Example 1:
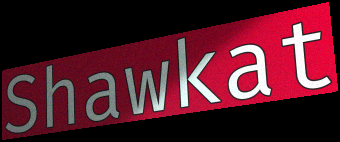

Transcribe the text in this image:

Shawkat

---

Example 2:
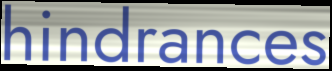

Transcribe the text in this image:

hindrances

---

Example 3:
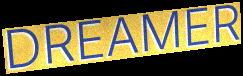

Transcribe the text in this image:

DREAMER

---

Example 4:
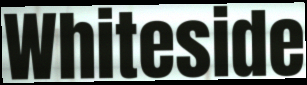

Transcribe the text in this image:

Whiteside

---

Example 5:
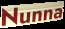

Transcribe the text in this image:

Nunna